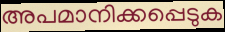
അപമാനിക്കപ്പെടുക